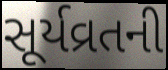
સૂર્યવ્રતની